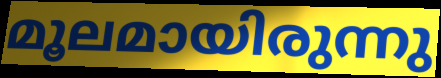
മൂലമായിരുന്നു